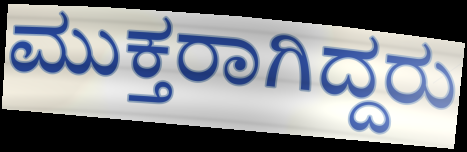
ಮುಕ್ತರಾಗಿದ್ದರು